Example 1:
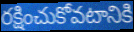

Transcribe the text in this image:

రక్షించుకోవటానికి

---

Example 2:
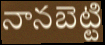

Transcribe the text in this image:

నానబెట్టి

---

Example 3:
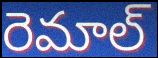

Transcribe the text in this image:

రెమాల్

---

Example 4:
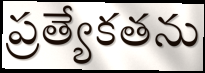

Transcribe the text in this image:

ప్రత్యేకతను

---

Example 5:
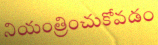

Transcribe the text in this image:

నియంత్రించుకోవడం